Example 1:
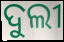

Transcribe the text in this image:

ଦୁଲୀ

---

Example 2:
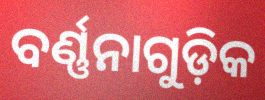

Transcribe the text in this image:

ବର୍ଣ୍ଣନାଗୁଡ଼ିକ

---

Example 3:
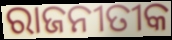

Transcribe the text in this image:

ରାଜନୀତୀକ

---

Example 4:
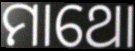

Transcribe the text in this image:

ମାଥୋ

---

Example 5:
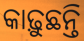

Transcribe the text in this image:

କାଢ଼ୁଛନ୍ତି